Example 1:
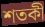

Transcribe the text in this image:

শতকী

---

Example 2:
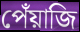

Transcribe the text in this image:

পেঁয়াজি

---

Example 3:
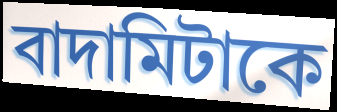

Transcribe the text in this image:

বাদামিটাকে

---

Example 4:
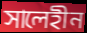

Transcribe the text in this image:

সালেহীন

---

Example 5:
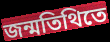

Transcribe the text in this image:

জন্মতিথিতে